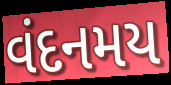
વંદનમય